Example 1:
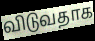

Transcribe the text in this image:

விடுவதாக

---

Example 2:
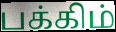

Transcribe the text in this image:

பக்கிம்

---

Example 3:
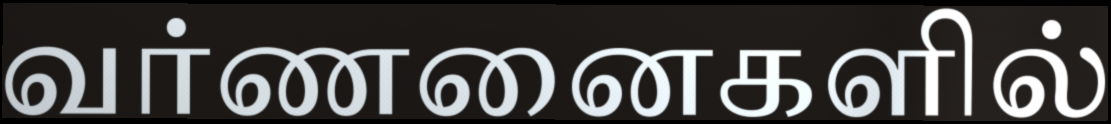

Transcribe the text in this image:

வர்ணனைகளில்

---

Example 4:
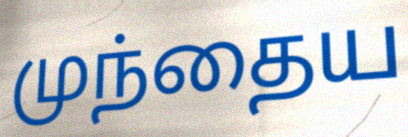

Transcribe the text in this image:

முந்தைய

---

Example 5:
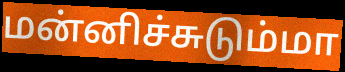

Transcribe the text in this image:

மன்னிச்சுடும்மா